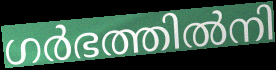
ഗർഭത്തിൽനി